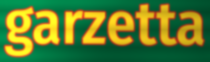
garzetta